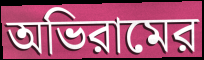
অভিরামের